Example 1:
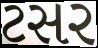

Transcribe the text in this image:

ટસર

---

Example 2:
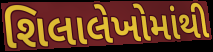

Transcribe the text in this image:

શિલાલેખોમાંથી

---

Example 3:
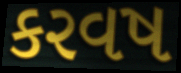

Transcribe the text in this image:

કરવષ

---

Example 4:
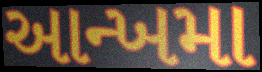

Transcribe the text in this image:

આન્ખમા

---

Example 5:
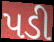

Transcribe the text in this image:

પડી